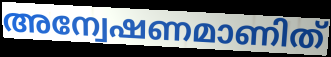
അന്വേഷണമാണിത്